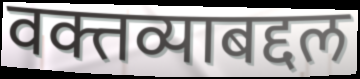
वक्तव्याबद्दल